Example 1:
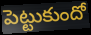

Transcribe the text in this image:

పెట్టుకుందో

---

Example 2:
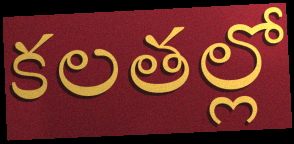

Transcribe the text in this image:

కలతల్లో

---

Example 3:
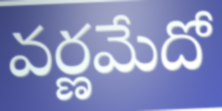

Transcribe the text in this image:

వర్ణమేదో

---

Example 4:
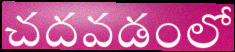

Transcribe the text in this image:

చదవడంలో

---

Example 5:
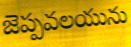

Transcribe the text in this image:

జెప్పవలయును